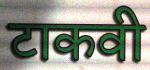
टाकवी